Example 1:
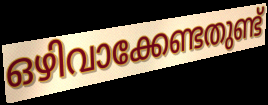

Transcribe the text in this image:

ഒഴിവാക്കേണ്ടതുണ്ട്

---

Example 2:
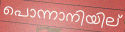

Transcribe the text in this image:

പൊന്നാനിയില്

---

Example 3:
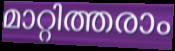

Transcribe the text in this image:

മാറ്റിത്തരാം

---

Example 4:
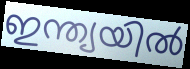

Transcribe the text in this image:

ഇന്ത്യയിൽ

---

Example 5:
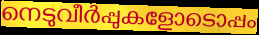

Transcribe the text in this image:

നെടുവീർപ്പുകളോടൊപ്പം